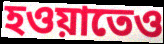
হওয়াতেও